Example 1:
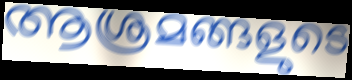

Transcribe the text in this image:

ആശ്രമങ്ങളുടെ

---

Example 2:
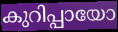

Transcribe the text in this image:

കുറിപ്പായോ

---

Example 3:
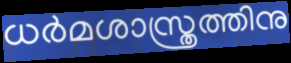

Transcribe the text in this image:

ധർമശാസ്ത്രത്തിനു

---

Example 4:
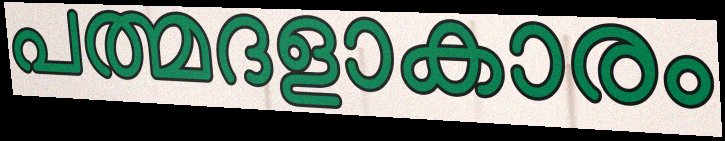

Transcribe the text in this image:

പത്മദളാകാരം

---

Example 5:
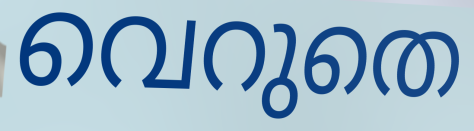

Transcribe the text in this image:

വെറുതെ